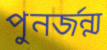
পুনৰ্জন্ম